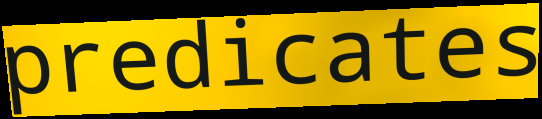
predicates